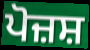
ਪੋਜ਼ਸ਼